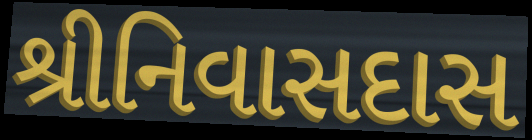
શ્રીનિવાસદાસ